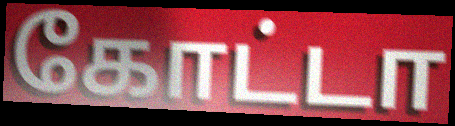
கோட்டா